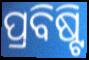
ପ୍ରବିଷ୍ଟି